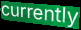
currently